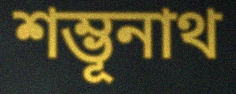
শম্ভূনাথ